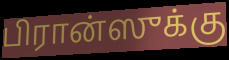
பிரான்ஸுக்கு